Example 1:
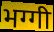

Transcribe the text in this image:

भग्गी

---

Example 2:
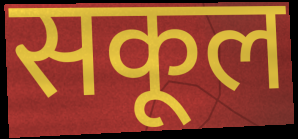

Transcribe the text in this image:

सकूल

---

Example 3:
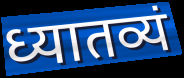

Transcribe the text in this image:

ध्यातव्यं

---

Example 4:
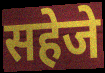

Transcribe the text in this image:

सहेजे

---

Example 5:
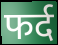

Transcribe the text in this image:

फर्द